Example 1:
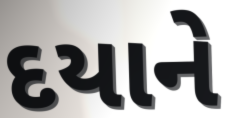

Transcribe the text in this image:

દયાને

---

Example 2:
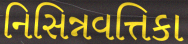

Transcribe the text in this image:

નિસિન્નવત્તિકા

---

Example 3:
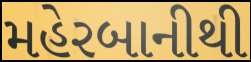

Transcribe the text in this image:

મહેરબાનીથી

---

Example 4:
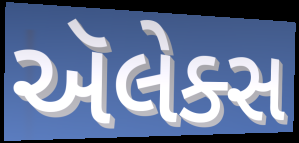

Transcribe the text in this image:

ઍલેક્સ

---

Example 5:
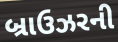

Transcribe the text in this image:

બ્રાઉઝરની